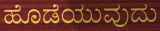
ಹೊಡೆಯುವುದು